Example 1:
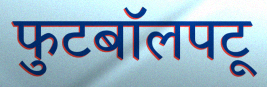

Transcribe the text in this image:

फुटबॉलपटू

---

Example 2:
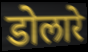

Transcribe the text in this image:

डोलारे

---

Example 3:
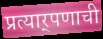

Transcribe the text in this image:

प्रत्यार्पणाची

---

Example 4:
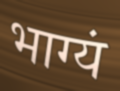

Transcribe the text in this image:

भाग्यं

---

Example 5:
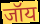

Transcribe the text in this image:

जॉय